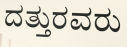
ದತ್ತುರವರು